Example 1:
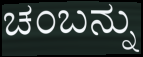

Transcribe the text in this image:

ಚಂಬನ್ನು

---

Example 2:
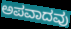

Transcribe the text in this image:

ಅಪವಾದವು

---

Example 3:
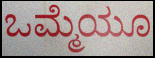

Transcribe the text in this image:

ಒಮ್ಮೆಯೂ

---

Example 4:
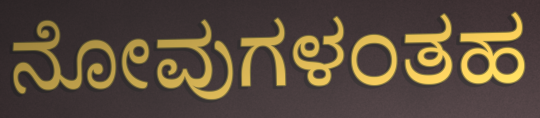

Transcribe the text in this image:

ನೋವುಗಳಂತಹ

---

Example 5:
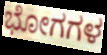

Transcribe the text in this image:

ಭೋಗಗಳ